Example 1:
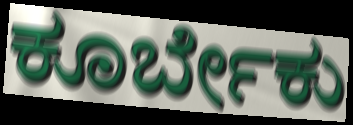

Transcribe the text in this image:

ಕೂರ್ಬೇಕು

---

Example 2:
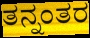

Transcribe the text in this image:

ತನ್ನಂತರ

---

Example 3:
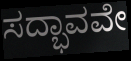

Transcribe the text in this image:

ಸದ್ಭಾವವೇ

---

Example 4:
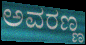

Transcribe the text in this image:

ಅವರಣ್ಣ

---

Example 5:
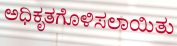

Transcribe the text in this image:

ಅಧಿಕೃತಗೊಳಿಸಲಾಯಿತು